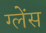
ग्लेंस